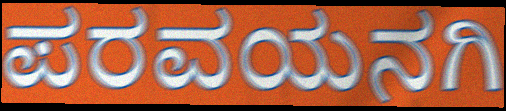
ಪರವಯನಗಿ